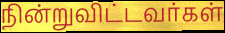
நின்றுவிட்டவர்கள்